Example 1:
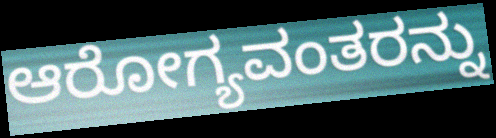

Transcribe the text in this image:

ಆರೋಗ್ಯವಂತರನ್ನು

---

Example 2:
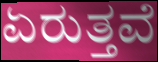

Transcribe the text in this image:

ಏರುತ್ತವೆ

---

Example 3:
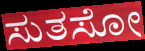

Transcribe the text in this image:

ಸುತಸೋ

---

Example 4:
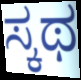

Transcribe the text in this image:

ಸ್ಕಥ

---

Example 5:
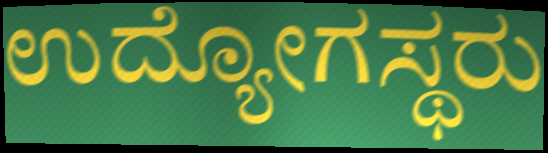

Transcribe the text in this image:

ಉದ್ಯೋಗಸ್ಥರು